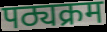
पठ्यक्रम